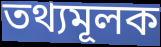
তথ্যমূলক